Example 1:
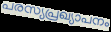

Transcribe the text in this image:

പരസ്യപ്രഖ്യാപനം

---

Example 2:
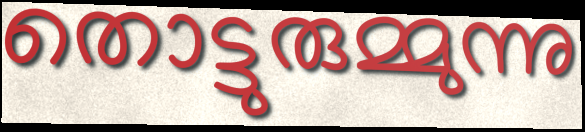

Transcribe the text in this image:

തൊട്ടുരുമ്മുന്നു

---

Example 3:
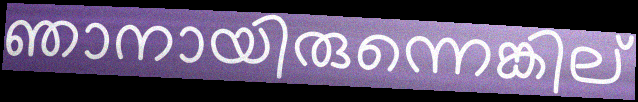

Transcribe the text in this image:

ഞാനായിരുന്നെങ്കില്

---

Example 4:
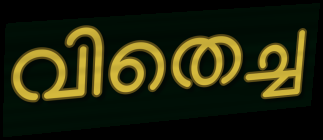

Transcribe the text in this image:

വിതെച്ച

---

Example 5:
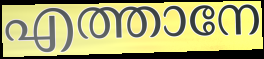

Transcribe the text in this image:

എത്താനേ